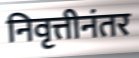
निवृत्तीनंतर